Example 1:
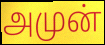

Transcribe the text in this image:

அமுன்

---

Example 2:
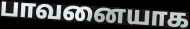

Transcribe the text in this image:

பாவனையாக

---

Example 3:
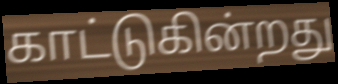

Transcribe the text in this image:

காட்டுகின்றது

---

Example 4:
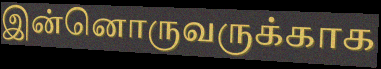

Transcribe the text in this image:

இன்னொருவருக்காக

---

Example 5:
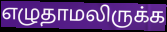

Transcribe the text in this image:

எழுதாமலிருக்க